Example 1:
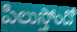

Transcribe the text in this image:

పిలుస్తోందో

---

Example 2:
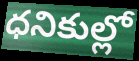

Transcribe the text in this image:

ధనికుల్లో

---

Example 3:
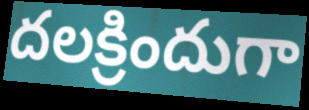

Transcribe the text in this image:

దలక్రిందుగా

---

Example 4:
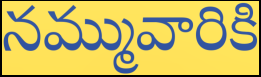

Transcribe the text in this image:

నమ్మువారికి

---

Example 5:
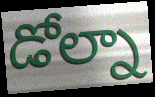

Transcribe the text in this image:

డోల్నా